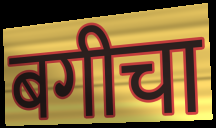
बगीचा